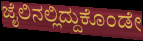
ಜೈಲಿನಲ್ಲಿದ್ದುಕೊಂಡೇ